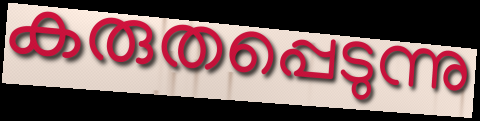
കരുതപ്പെടുന്നു